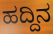
ಹದ್ದಿನ